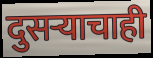
दुसऱ्याचाही